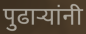
पुढाऱ्यांनी